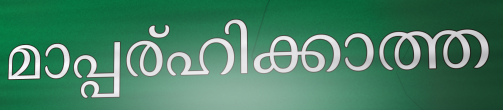
മാപ്പര്ഹിക്കാത്ത